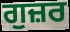
ਗੁਜ਼ਰ